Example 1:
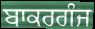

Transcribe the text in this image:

ਬਾਕਰਗੰਜ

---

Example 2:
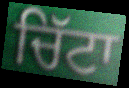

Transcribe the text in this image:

ਚਿੱਟਾ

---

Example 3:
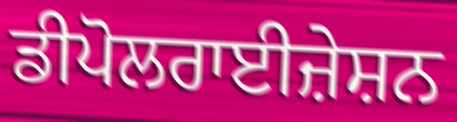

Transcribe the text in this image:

ਡੀਪੋਲਰਾਈਜ਼ੇਸ਼ਨ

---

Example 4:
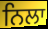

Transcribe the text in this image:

ਨਿਲਾ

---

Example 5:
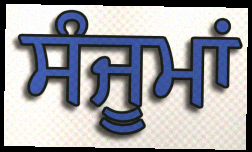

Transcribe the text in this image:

ਸੰਜੂਮਾਂ